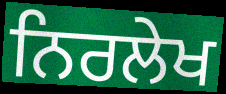
ਨਿਰਲੇਖ